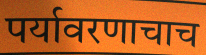
पर्यावरणाचाच